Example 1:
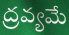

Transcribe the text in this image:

ద్రవ్యమే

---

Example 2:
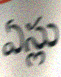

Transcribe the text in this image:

ఏస్లు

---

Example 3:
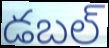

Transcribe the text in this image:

డబల్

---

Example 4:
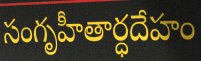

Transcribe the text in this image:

సంగృహీతార్ధదేహం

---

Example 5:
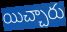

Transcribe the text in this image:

యిచ్చారు